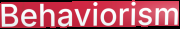
Behaviorism